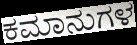
ಕಮಾನುಗಳ